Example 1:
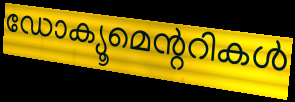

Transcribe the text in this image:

ഡോക്യൂമെന്ററികൾ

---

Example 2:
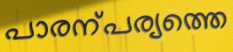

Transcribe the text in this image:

പാരന്പര്യത്തെ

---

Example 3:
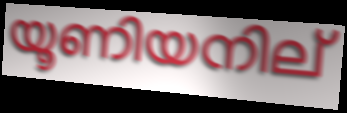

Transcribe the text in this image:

യൂണിയനില്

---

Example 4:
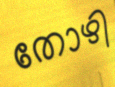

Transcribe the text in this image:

തോഴി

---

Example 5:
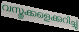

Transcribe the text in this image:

വസ്തുക്കളെക്കുറിച്ചു